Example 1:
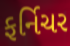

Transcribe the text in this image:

ફર્નિચર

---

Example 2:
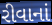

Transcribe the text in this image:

રીવાનાં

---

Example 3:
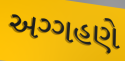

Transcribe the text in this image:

અગ્ગહણે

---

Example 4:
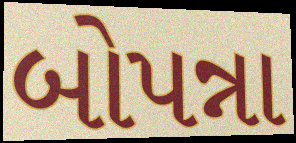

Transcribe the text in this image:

બોપન્ના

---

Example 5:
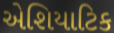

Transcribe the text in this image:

એશિયાટિક